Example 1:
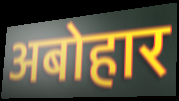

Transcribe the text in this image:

अबोहार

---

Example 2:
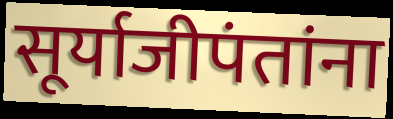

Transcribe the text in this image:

सूर्याजीपंतांना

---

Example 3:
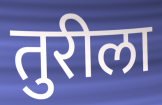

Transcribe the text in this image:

तुरीला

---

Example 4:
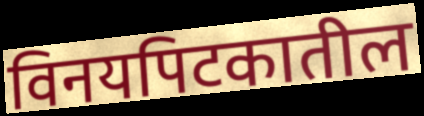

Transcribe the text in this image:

विनयपिटकातील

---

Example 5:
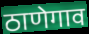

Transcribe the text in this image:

ठाणेगाव